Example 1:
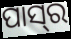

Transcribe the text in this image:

ପାସ୍‍ର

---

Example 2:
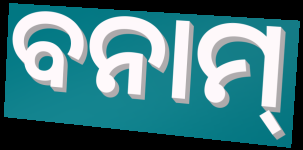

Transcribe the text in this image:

ବନାମ୍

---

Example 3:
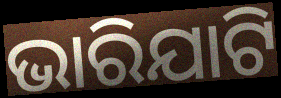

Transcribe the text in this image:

ଭାରିଯାଟି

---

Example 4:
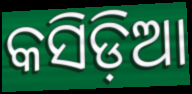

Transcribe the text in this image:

କସିଡ଼ିଆ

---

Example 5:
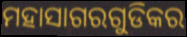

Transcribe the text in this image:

ମହାସାଗରଗୁଡିକର